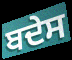
ਬਦੇਸ